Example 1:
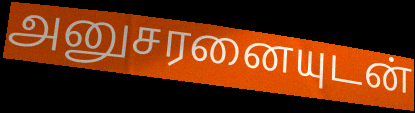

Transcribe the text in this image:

அனுசரனையுடன்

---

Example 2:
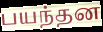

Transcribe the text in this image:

பயந்தன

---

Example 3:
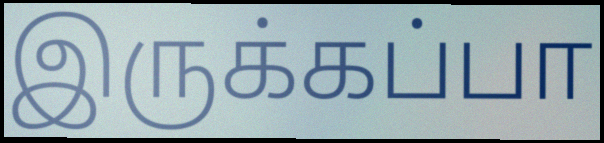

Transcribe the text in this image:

இருக்கப்பா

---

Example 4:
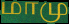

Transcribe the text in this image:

மாமு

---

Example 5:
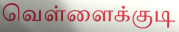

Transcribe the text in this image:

வெள்ளைக்குடி